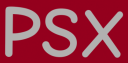
PSX